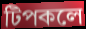
টিপকলে